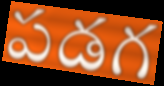
పడగ